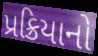
પ્રક્રિયાનો